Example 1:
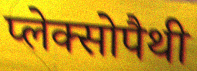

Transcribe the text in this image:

प्लेक्सोपैथी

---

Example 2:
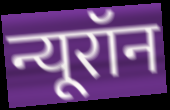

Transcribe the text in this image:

न्यूरॉन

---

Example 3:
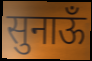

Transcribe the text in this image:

सुनाऊँ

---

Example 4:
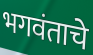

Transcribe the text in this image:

भगवंताचे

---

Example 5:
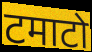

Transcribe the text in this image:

टमाटो